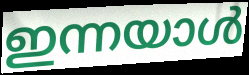
ഇന്നയാൾ